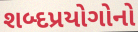
શબ્દપ્રયોગોનો